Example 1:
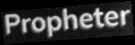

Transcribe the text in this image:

Propheter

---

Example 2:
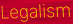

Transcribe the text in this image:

Legalism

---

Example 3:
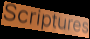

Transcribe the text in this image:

Scriptures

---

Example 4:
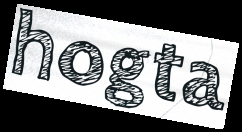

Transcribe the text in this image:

hogta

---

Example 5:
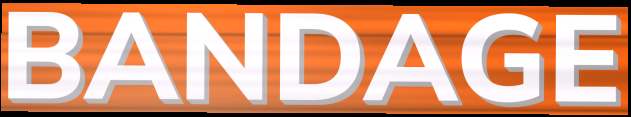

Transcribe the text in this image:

BANDAGE